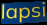
lapsi